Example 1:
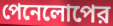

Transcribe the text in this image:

পেনেলোপের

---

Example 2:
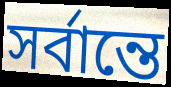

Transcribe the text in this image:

সর্বান্তে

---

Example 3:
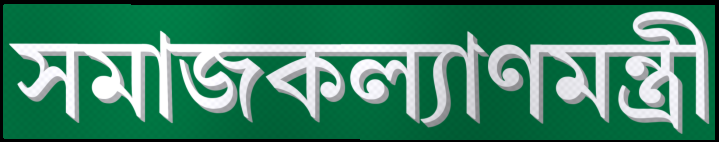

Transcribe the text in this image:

সমাজকল্যাণমন্ত্রী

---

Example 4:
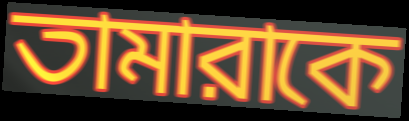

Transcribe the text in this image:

তামারাকে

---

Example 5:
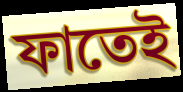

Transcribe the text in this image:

ফাতেই